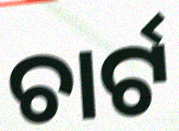
ଚାର୍ଟ